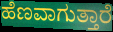
ಹೆಣವಾಗುತ್ತಾರೆ